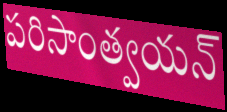
పరిసాంత్వయన్